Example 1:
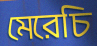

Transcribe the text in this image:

মেরেচি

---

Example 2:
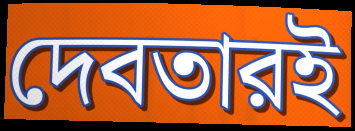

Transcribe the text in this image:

দেবতারই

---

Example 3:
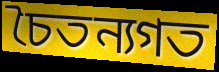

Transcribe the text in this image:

চৈতন্যগত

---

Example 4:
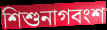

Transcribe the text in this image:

শিশুনাগবংশ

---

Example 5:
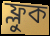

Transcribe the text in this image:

ফ্লুক